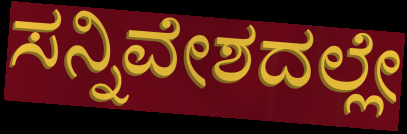
ಸನ್ನಿವೇಶದಲ್ಲೇ